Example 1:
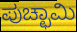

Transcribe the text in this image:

ಪುಚ್ಛಾಮಿ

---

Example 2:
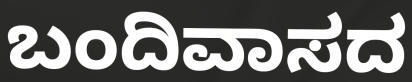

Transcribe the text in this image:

ಬಂದಿವಾಸದ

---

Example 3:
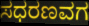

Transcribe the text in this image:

ಸಧರಣವಗ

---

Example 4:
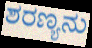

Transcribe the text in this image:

ಶರಣ್ಯನು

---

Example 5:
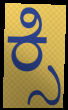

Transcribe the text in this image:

ಕ್ಸಿ